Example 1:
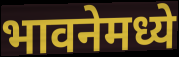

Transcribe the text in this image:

भावनेमध्ये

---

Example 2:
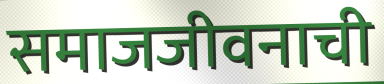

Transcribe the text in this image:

समाजजीवनाची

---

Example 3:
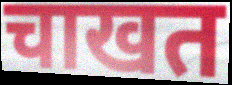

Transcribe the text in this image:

चाखत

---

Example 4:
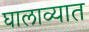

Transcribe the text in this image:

घालाव्यात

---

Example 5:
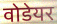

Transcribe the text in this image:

वोडेयर